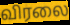
விரலை